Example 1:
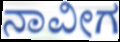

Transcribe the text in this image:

ನಾವೀಗ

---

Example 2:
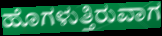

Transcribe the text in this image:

ಹೊಗಳುತ್ತಿರುವಾಗ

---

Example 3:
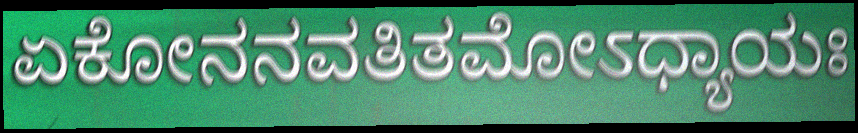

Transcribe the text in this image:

ಏಕೋನನವತಿತಮೋಽಧ್ಯಾಯಃ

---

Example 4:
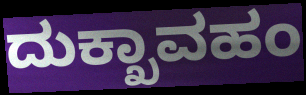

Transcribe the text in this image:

ದುಕ್ಖಾವಹಂ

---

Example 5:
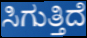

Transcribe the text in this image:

ಸಿಗುತ್ತಿದೆ